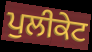
ਪੁਲੀਕੇਟ